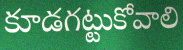
కూడగట్టుకోవాలి